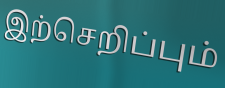
இற்செறிப்பும்